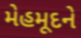
મેહમૂદને